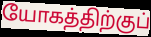
யோகத்திற்குப்